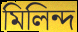
মিলিন্দ